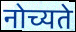
नोच्यते